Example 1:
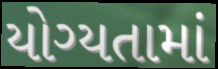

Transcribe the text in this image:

યોગ્યતામાં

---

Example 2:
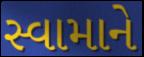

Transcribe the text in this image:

સ્વામાને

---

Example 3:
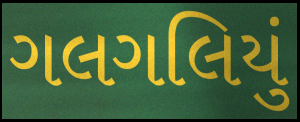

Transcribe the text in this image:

ગલગલિયું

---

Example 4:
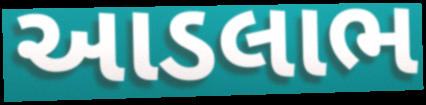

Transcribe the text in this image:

આડલાભ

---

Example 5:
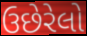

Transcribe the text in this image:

ઉછેરેલો